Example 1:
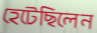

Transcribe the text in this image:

হেটেছিলেন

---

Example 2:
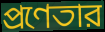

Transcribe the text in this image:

প্রণেতার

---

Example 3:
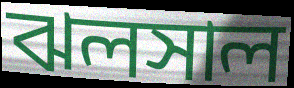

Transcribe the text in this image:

ঝলসাল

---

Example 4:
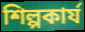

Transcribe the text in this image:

শিল্পকার্য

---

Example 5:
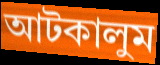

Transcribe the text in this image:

আটকালুম